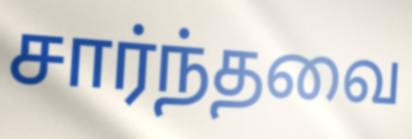
சார்ந்தவை